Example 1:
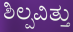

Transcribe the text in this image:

ಶಿಲ್ಪವಿತ್ತು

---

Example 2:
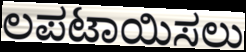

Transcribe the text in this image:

ಲಪಟಾಯಿಸಲು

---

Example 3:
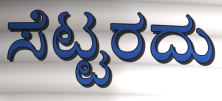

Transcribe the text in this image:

ಸೆಟ್ಟರದು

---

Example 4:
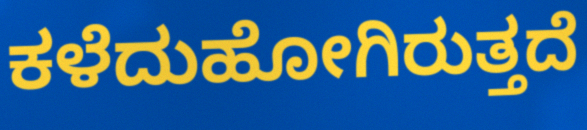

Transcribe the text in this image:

ಕಳೆದುಹೋಗಿರುತ್ತದೆ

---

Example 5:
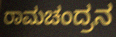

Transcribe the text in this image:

ರಾಮಚಂದ್ರನ